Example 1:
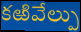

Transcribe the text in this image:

కఱివేల్పు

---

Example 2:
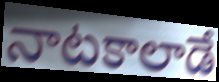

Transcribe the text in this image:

నాటకాలాడే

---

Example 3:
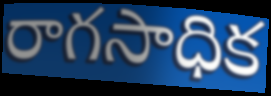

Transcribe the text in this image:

రాగసాధిక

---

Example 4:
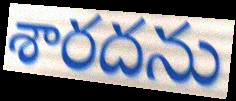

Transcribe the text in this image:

శారదను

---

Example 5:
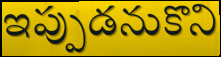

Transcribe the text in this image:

ఇప్పుడనుకొని